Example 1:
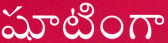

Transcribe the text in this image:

షూటింగా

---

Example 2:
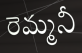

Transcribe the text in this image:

రెమ్మనీ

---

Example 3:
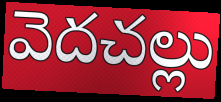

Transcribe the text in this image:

వెదచల్లు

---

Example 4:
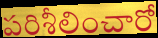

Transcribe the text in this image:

పరిశీలించారో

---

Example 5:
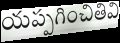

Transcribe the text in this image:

యప్పగించితివి